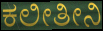
ಕಲೀತೀನಿ